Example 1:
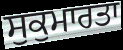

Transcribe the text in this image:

ਸੁਕੁਮਾਰਤਾ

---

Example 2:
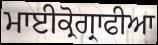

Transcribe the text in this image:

ਮਾਈਕ੍ਰੋਗ੍ਰਾਫੀਆ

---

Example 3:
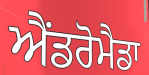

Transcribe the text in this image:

ਐਂਡਰੋਮੈਡਾ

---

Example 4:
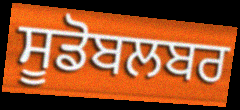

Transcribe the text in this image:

ਸੂਡੋਬਲਬਰ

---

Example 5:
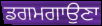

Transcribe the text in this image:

ਡਗਮਗਾਉਣਾ